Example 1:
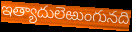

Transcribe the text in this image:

ఇత్యాదులెఱుంగునది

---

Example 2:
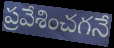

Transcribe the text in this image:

ప్రవేశించగనే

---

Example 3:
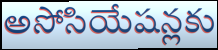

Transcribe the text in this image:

అసోసియేషన్లకు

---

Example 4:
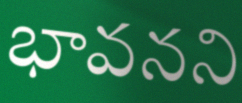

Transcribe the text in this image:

భావనని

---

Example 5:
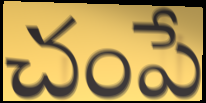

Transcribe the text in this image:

చంపే